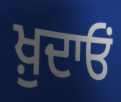
ਖ਼ੁਦਾਓਂ